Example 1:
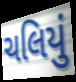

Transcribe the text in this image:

ચલિયું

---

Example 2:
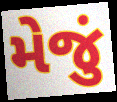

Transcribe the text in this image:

મેજું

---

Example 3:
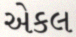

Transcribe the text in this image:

એકલ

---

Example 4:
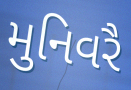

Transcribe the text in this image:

મુનિવરૈ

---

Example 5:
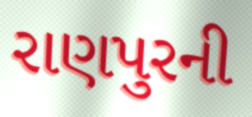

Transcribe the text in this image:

રાણપુરની